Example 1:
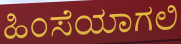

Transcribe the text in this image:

ಹಿಂಸೆಯಾಗಲಿ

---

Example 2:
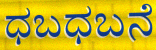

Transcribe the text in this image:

ಧಬಧಬನೆ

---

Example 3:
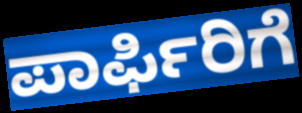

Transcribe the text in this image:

ಪಾರ್ಫಿರಿಗೆ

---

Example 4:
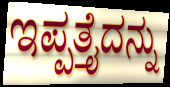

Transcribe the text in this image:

ಇಪ್ಪತ್ತೈದನ್ನು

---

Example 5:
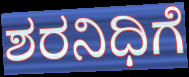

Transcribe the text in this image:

ಶರನಿಧಿಗೆ